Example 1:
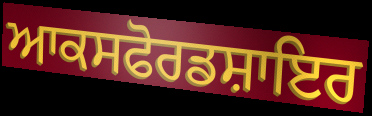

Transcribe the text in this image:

ਆਕਸਫੋਰਡਸ਼ਾਇਰ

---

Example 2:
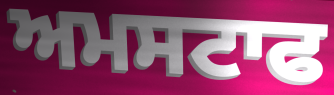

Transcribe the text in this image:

ਅਮਸਟਾਫ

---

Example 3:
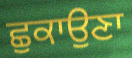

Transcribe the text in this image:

ਛੁਕਾਉਣਾ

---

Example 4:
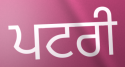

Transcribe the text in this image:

ਪਟਰੀ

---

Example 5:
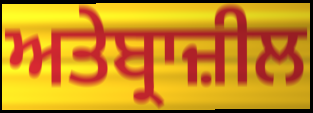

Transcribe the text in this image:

ਅਤੇਬ੍ਰਾਜ਼ੀਲ